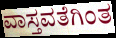
ವಾಸ್ತವತೆಗಿಂತ